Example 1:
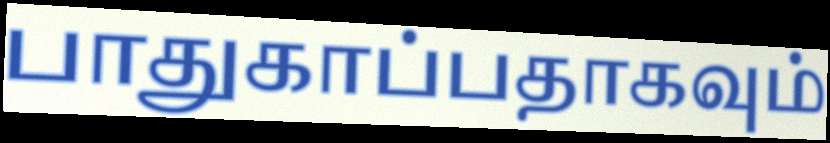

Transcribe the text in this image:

பாதுகாப்பதாகவும்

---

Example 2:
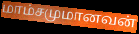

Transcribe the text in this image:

மாம்சமுமானவன்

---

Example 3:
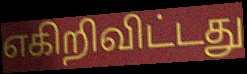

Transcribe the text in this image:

எகிறிவிட்டது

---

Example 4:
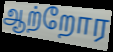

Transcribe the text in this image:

ஆற்றோர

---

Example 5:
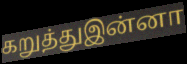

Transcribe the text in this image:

கறுத்துஇன்னா